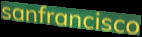
sanfrancisco